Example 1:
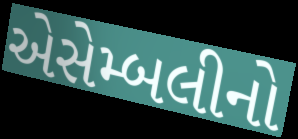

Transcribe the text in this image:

એસેમ્બલીનો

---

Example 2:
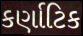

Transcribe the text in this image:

કર્ણાટિક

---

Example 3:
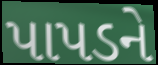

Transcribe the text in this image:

પાપડને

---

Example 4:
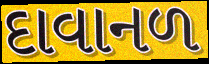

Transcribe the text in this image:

દાવાનળ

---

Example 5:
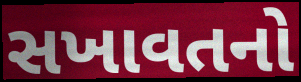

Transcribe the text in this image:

સખાવતનો